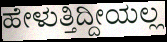
ಹೇಳುತ್ತಿದ್ದೀಯಲ್ಲ